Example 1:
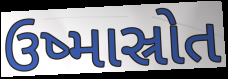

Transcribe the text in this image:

ઉષ્માસ્રોત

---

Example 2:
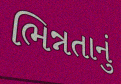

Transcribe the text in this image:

ભિન્નતાનું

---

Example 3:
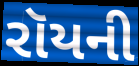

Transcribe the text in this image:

રૉયની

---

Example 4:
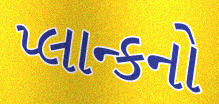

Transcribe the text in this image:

પ્લાન્કનો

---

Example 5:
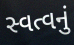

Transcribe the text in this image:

સ્વત્વનું